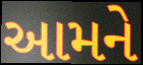
આમને